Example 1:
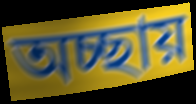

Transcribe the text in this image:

অচ্ছায়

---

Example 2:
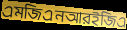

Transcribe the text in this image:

এমজিএনআরইজিএ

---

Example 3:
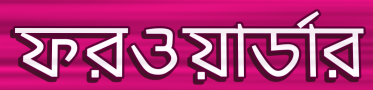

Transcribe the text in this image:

ফরওয়ার্ডার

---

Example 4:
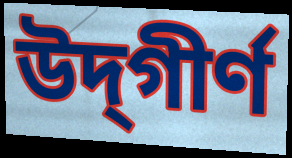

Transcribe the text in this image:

উদ্‌গীর্ণ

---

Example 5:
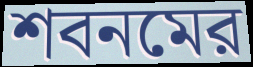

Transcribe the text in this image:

শবনমের